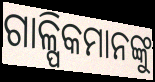
ଗାଳ୍ପିକମାନଙ୍କୁ